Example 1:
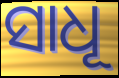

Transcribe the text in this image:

ସାଧୂ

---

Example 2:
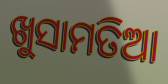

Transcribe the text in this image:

ଖୁସାମତିଆ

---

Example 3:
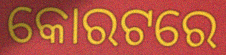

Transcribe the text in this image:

କୋରଟରେ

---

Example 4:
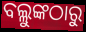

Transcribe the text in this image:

ବଲ୍ଲୁଙ୍କଠାରୁ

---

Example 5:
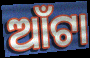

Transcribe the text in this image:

ଆଁଟା